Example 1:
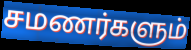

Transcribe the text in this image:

சமணர்களும்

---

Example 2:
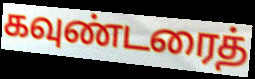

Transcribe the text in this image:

கவுண்டரைத்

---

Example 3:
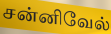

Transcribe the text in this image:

சன்னிவேல்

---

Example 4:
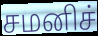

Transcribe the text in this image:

சமனிச்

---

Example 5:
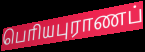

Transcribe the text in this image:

பெரியபுராணப்